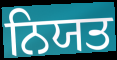
ਨਿਯਤ